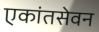
एकांतसेवन